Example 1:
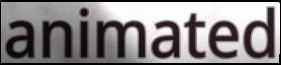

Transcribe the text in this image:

animated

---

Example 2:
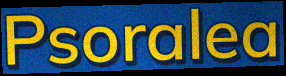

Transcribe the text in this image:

Psoralea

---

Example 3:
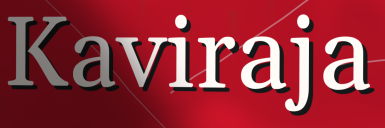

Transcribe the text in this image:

Kaviraja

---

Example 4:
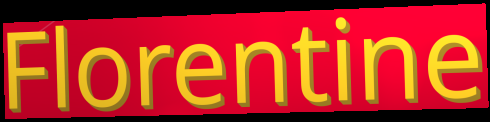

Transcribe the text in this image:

Florentine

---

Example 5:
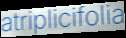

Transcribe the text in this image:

atriplicifolia